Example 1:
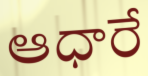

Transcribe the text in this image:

ఆధారే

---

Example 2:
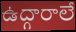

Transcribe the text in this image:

ఉద్గారాలే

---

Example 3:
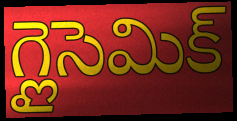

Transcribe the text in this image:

గ్లైసెమిక్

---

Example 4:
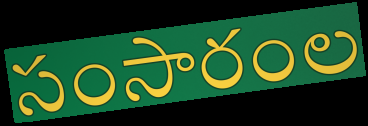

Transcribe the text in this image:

సంసారంల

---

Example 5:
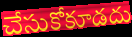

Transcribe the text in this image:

చేసుకోకూడదు